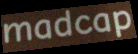
madcap